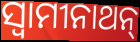
ସ୍ବାମୀନାଥନ୍